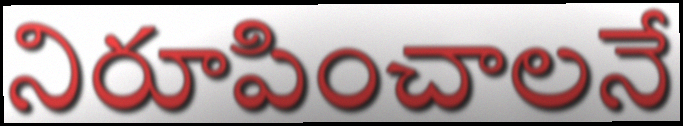
నిరూపించాలనే